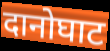
दानोघाट